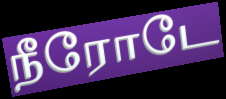
நீரோடே